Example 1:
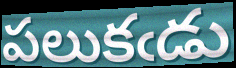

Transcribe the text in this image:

పలుకఁడు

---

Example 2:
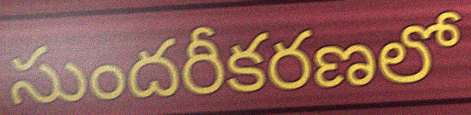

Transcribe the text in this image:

సుందరీకరణలో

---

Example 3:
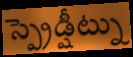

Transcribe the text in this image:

స్ప్రెడ్షీట్ను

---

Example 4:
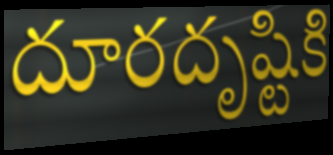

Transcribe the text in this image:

దూరదృష్టికి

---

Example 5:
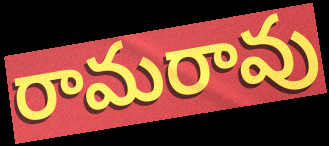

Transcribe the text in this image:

రామరావు